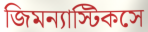
জিমন্যাস্টিকসে